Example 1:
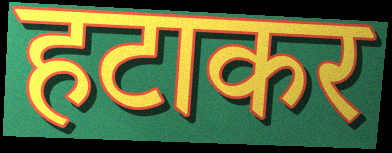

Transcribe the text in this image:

हटाकर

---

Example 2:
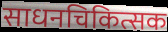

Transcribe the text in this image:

साधनचिकित्सक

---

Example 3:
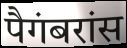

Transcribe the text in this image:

पैगंबरांस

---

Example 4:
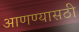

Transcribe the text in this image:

आणण्यासठी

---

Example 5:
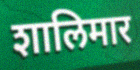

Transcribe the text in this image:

शालिमार